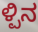
ಳ್ಪಿನ